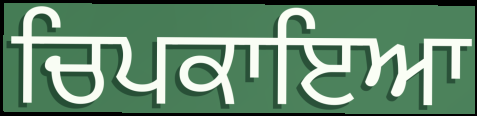
ਚਿਪਕਾਇਆ